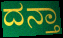
ದನ್ತಾ